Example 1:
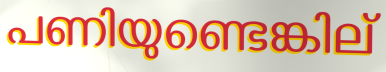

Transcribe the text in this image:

പണിയുണ്ടെങ്കില്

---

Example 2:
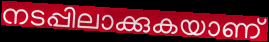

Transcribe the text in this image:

നടപ്പിലാക്കുകയാണ്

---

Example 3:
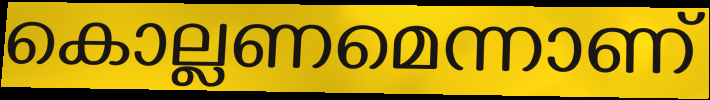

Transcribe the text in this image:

കൊല്ലണമെന്നാണ്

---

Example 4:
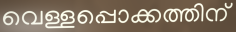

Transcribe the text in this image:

വെള്ളപ്പൊക്കത്തിന്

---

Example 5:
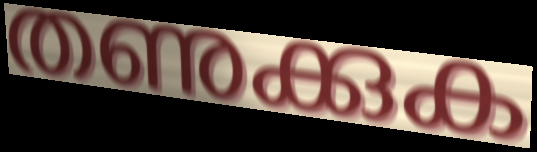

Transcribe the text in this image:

തണുക്കുക